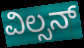
ವಿಲ್ಸನ್